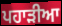
ਪਹਾੜੀਆ